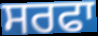
ਸਰਫਾ